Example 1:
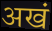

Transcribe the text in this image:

अखं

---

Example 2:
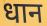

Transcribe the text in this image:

धान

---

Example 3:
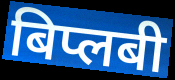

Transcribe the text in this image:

बिप्लबी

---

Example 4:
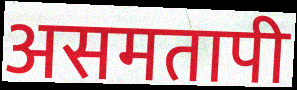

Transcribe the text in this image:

असमतापी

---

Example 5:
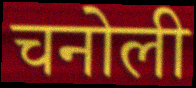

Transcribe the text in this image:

चनोली